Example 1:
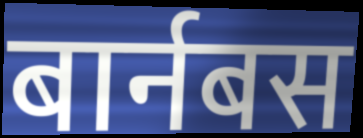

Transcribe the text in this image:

बार्नबस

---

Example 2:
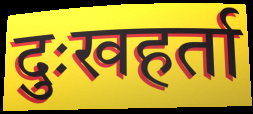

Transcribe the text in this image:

दुःखहर्ता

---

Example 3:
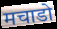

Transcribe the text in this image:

मचाडो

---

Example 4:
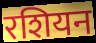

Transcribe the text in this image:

रशियन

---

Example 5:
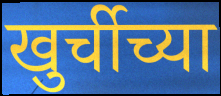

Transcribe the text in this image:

खुर्चीच्या